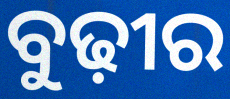
ବୁଢ଼ୀର